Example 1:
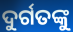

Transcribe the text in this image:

ଦୁର୍ଗତଙ୍କୁ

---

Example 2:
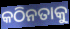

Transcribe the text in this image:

କଠିନତାକୁ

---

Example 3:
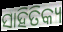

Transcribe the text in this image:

ସାହିତିକ୍ୟ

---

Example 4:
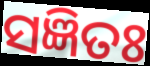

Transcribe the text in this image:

ସଜ୍ଞିତଃ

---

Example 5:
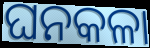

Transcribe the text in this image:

ଘନକଳା